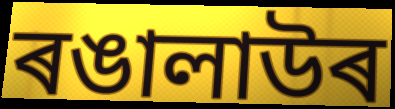
ৰঙালাউৰ